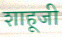
शाहूजी